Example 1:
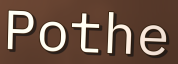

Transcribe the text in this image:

Pothe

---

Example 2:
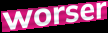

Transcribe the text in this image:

worser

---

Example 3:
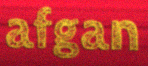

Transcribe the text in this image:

afgan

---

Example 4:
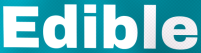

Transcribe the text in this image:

Edible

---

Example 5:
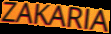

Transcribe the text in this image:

ZAKARIA